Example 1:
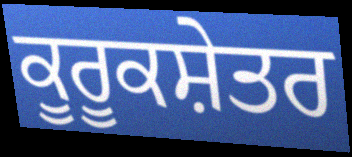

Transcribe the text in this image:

ਕੂਰੂਕਸ਼ੇਤਰ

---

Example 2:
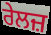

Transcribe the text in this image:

ਰੇਲਜ਼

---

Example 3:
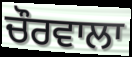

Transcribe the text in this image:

ਚੌਰਵਾਲਾ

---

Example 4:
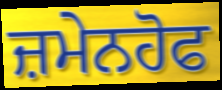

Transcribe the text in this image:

ਜ਼ਮੇਨਹੋਫ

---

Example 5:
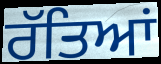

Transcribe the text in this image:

ਰੱਤਿਆਂ